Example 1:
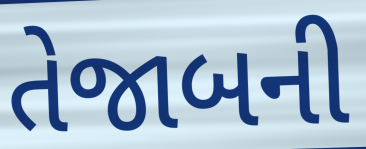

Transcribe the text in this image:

તેજાબની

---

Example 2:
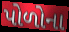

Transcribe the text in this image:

પોળોના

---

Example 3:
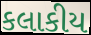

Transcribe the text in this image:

કલાકીય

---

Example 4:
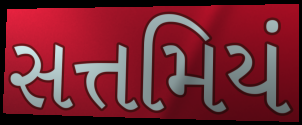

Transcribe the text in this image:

સત્તમિયં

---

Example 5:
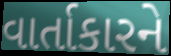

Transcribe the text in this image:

વાર્તાકારને